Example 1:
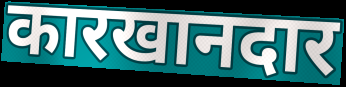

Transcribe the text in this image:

कारखानदार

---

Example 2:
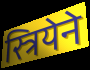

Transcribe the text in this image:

स्त्रियेने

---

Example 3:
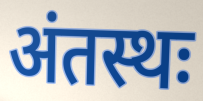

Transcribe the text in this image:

अंतस्थः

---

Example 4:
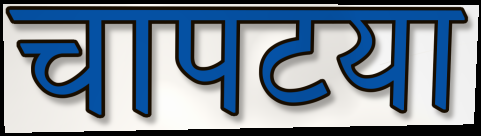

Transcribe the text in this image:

चापटया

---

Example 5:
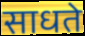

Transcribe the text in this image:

साधते